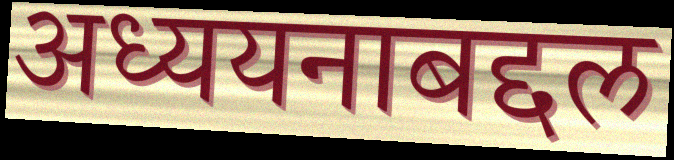
अध्ययनाबद्दल